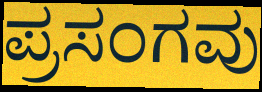
ಪ್ರಸಂಗವು